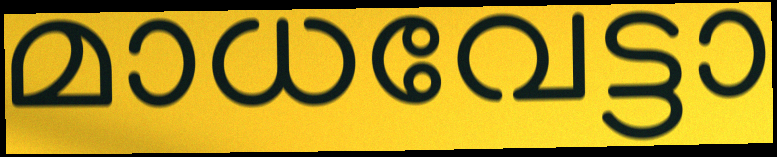
മാധവേട്ടാ